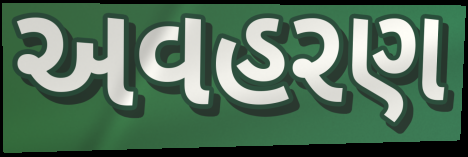
અવહરણ